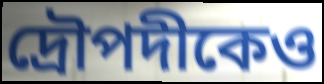
দ্রৌপদীকেও